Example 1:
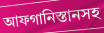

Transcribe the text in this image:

আফগানিস্তানসহ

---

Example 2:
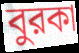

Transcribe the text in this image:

বুরকা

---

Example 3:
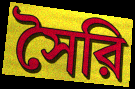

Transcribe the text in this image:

সৈরি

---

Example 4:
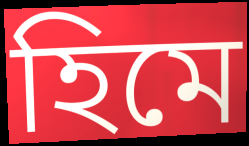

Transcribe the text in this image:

হিমে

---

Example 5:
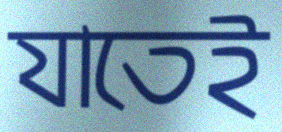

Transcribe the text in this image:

যাতেই